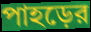
পাহড়ের